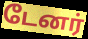
டேனர்